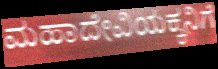
ಮಹಾದೇವಿಯಕ್ಕನಿಗೆ